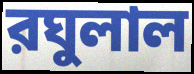
রঘুলাল